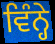
ਵਿੰਨ੍ਹੇ